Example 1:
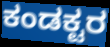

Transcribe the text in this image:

ಕಂಡಕ್ಟರ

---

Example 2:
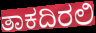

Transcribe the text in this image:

ತಾಕದಿರಲಿ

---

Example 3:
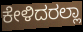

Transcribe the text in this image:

ಕೇಳಿದರಲ್ಲಾ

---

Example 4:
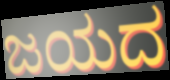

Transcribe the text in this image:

ಜಯದ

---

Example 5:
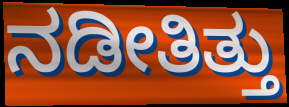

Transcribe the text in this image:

ನಡೀತಿತ್ತು